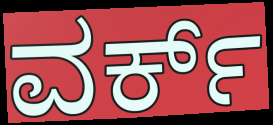
ವರ್ಕ್